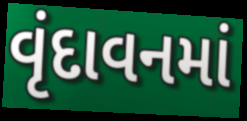
વૃંદાવનમાં